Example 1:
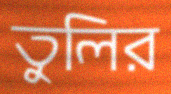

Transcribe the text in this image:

তুলির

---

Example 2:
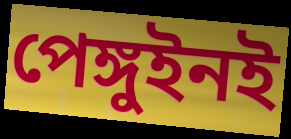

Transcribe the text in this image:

পেঙ্গুইনই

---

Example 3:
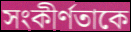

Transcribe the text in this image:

সংকীর্ণতাকে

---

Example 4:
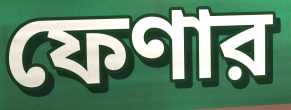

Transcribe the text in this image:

ফেণার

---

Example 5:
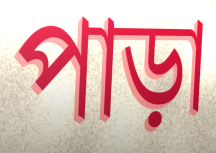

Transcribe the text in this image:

পাড়া